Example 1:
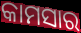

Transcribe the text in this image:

କାମସାର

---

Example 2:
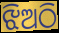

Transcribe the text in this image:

ଝିଅଠି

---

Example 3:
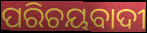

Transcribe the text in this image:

ପରିଚୟବାଦୀ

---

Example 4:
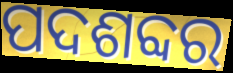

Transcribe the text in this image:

ପଦଶବ୍ଦର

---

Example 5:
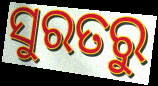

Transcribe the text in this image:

ସୁରତରୁ